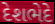
દેશભેદે